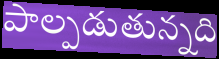
పాల్పడుతున్నది